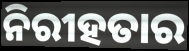
ନିରୀହତାର